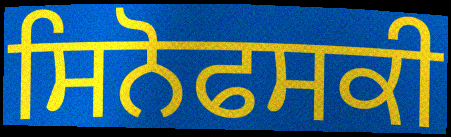
ਸਿਨੋਫਸਕੀ